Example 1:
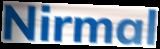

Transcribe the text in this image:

Nirmal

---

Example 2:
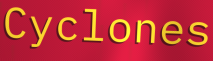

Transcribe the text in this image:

Cyclones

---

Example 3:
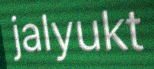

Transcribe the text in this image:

jalyukt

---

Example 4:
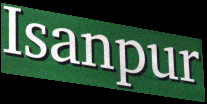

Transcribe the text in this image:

Isanpur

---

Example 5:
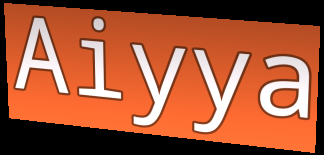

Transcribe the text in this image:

Aiyya